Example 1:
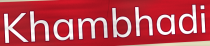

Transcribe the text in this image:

Khambhadi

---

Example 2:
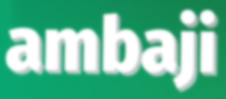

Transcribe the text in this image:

ambaji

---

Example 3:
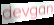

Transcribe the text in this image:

devgan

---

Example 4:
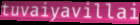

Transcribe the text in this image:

tuvaiyavillai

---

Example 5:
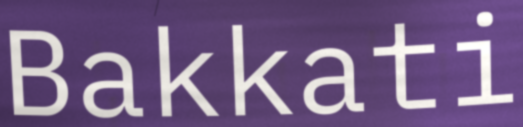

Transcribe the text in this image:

Bakkati